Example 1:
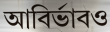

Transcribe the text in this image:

আবির্ভাবও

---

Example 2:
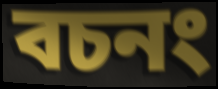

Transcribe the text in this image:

বচনং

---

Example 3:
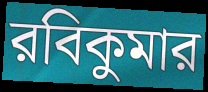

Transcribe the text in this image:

রবিকুমার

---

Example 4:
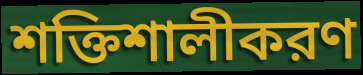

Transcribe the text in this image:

শক্তিশালীকরণ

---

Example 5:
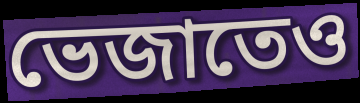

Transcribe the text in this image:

ভেজাতেও